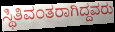
ಸ್ಥಿತಿವಂತರಾಗಿದ್ದವರು